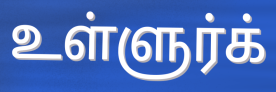
உள்ளுர்க்